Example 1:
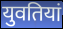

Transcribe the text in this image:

युवतियां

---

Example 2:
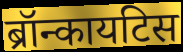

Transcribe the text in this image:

ब्रॉन्कायटिस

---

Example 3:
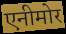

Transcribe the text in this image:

एनीमोर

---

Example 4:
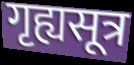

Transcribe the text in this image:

गृह्यसूत्र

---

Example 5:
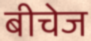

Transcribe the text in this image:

बीचेज